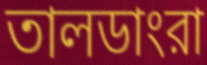
তালডাংরা